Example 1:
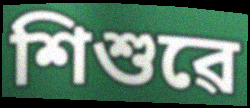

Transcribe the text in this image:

শিশুৱে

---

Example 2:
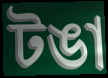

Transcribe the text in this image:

টঙা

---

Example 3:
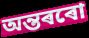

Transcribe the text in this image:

অন্তৰৰো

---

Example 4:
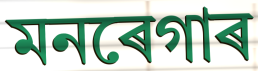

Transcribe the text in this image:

মনৰেগাৰ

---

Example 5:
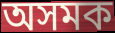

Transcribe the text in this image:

অসমক